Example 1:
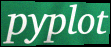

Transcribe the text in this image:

pyplot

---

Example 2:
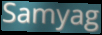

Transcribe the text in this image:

Samyag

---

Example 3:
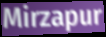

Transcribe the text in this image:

Mirzapur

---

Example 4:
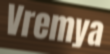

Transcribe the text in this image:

Vremya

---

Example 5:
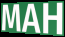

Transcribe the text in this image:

MAH